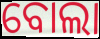
ବୋଲା